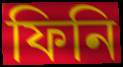
ফিনি